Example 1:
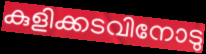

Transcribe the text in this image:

കുളിക്കടവിനോടു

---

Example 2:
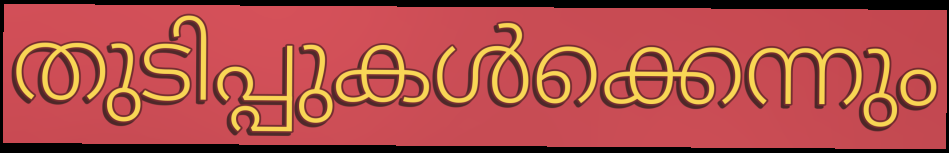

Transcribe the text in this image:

തുടിപ്പുകൾക്കെന്നും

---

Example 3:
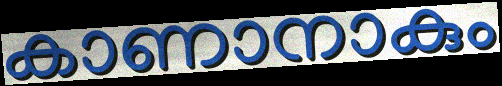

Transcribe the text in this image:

കാണാനാകും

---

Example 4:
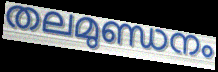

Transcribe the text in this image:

തലമുണ്ഡനം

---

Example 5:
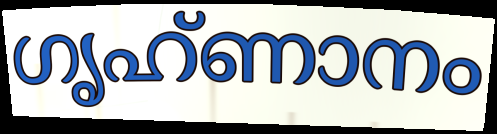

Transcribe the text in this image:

ഗൃഹ്ണാനം